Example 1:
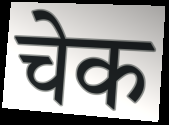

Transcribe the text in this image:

चेक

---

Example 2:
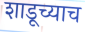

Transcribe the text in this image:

शाडूच्याच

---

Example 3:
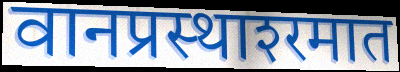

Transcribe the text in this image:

वानप्रस्थाश्रमात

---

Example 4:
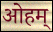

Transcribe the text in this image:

ओहम्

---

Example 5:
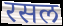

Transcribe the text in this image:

रसल